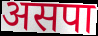
असपा